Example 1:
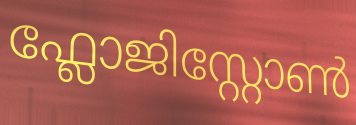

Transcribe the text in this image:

ഫ്ലോജിസ്റ്റോൺ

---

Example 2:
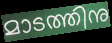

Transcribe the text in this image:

മാടത്തിനു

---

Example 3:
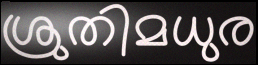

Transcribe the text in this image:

ശ്രുതിമധുര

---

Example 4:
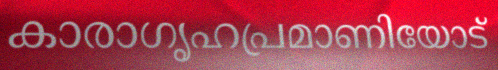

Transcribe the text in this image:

കാരാഗൃഹപ്രമാണിയോട്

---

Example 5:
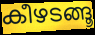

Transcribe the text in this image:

കീഴടങ്ങൂ